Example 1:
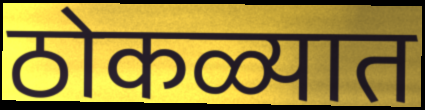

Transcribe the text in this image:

ठोकळ्यात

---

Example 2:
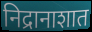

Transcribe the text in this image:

निद्रानाशात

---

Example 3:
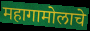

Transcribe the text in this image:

महागामोलाचे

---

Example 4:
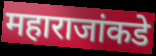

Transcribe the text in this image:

महाराजांकडे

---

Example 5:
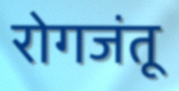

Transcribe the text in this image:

रोगजंतू